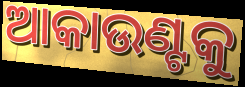
ଆକାଉଣ୍ଟକୁ